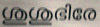
ശുശുഭിരേ